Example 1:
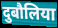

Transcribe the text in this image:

दुबौलिया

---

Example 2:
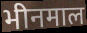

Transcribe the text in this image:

भीनमाल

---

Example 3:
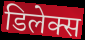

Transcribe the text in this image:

डिलेक्स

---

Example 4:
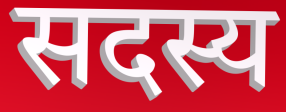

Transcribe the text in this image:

सदस्य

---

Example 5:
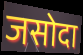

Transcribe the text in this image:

जसोदा